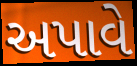
અપાવે